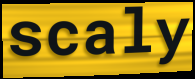
scaly